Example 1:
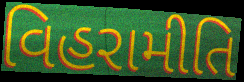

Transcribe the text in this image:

વિહરામીતિ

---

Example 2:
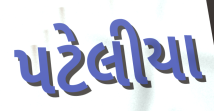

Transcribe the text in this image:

પટેલીયા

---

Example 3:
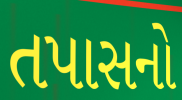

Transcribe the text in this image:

તપાસનો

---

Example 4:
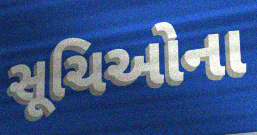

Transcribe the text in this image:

સૂચિઓના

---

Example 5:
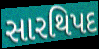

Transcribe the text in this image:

સારથિપદ